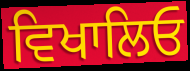
ਵਿਖਾਲਿਓ